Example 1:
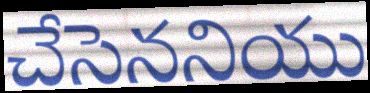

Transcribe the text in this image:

చేసెననియు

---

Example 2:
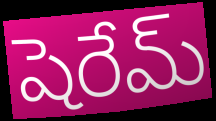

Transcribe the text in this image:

షెరేమ్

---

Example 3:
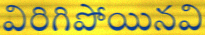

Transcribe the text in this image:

విరిగిపోయినవి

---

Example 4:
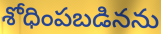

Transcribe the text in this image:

శోధింపబడినను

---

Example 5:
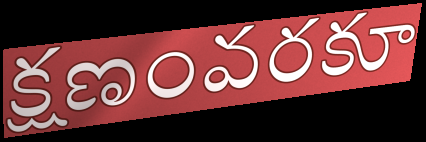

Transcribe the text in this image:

క్షణంవరకూ